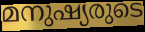
മനുഷ്യരുടെ